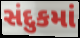
સંદુકમાં